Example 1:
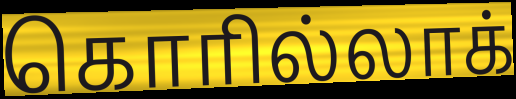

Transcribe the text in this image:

கொரில்லாக்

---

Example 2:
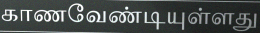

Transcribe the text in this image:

காணவேண்டியுள்ளது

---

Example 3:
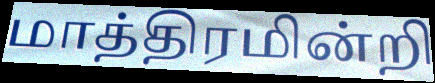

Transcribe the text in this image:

மாத்திரமின்றி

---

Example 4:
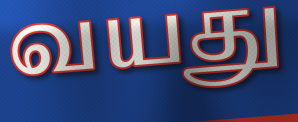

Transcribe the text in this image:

வயது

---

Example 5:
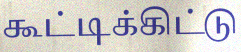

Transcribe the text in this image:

கூட்டிக்கிட்டு